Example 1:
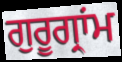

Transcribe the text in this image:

ਗੁਰੂਗ੍ਰਾਂਮ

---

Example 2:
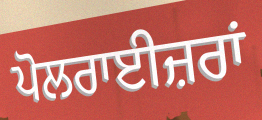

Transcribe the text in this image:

ਪੋਲਰਾਈਜ਼ਰਾਂ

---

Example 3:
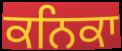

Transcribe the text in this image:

ਕਨਿਕਾ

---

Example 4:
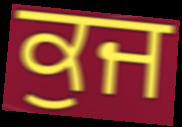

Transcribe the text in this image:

ਕੁਜ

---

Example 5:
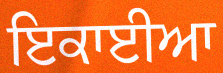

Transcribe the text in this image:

ਇਕਾਈਆ